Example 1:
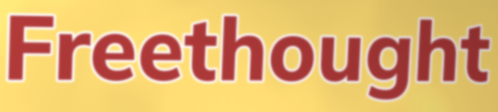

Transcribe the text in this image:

Freethought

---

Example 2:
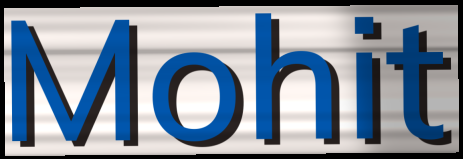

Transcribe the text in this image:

Mohit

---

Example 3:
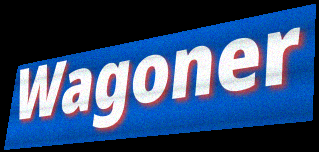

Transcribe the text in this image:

Wagoner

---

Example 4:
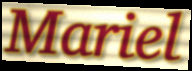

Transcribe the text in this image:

Mariel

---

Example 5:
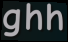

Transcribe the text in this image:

ghh